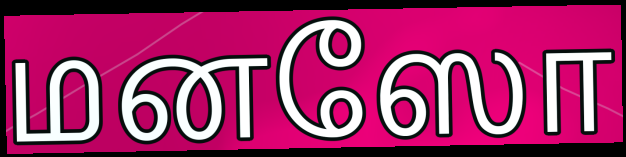
மனஸோ